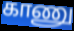
காணு